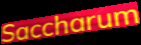
Saccharum